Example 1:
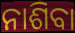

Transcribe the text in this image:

ନାଶିବା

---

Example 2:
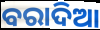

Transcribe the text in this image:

ବରାଦିଆ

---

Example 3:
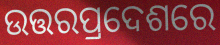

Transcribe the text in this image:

ଉତ୍ତରପ୍ରଦେଶରେ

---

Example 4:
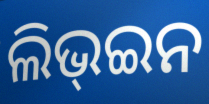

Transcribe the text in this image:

ଲିଭ୍ଇନ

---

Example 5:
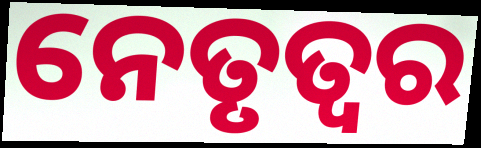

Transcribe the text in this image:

ନେତୃତ୍ଵର